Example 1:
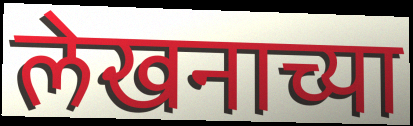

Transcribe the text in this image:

लेखनाच्या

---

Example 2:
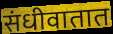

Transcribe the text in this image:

संधीवातात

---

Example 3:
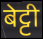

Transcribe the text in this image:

बेट्टी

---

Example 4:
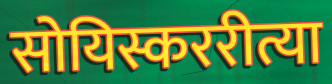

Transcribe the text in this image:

सोयिस्कररीत्या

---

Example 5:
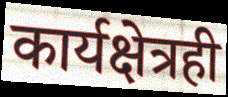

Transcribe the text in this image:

कार्यक्षेत्रही